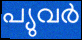
പ്യുവർ